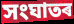
সংঘাতৰ